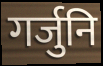
गर्जुनि